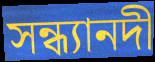
সন্ধ্যানদী